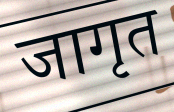
जागृत